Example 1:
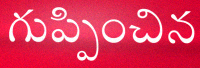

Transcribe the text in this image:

గుప్పించిన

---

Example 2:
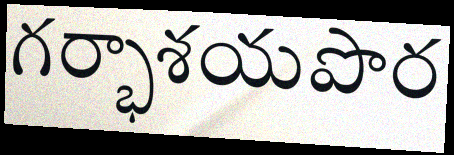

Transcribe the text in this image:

గర్భాశయపొర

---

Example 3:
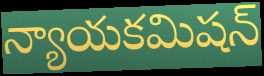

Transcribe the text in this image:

న్యాయకమిషన్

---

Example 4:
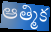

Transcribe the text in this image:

ఆత్మిక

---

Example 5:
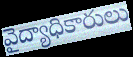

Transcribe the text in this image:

వైద్యాధికారులు